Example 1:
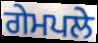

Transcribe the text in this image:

ਗੇਮਪਲੇ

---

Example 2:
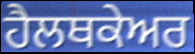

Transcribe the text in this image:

ਹੈਲਥਕੇਅਰ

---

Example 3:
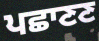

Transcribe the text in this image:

ਪਛਾਣਣ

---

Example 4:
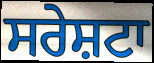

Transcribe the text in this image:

ਸਰੇਸ਼ਟਾ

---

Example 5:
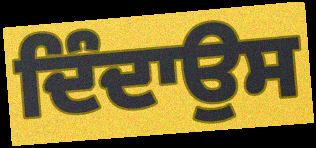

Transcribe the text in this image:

ਦਿੰਦਾਉਸ